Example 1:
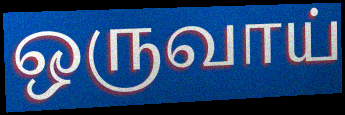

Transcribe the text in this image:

ஒருவாய்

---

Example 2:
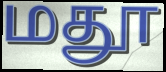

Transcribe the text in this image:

மதூ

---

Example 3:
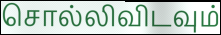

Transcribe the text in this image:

சொல்லிவிடவும்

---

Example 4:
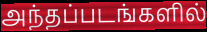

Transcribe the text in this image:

அந்தப்படங்களில்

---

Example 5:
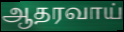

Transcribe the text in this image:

ஆதரவாய்